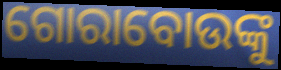
ଗୋରାବୋଉଙ୍କୁ